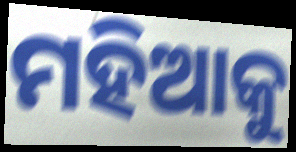
ମହିଆକୁ